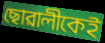
ছোৱালীকেই